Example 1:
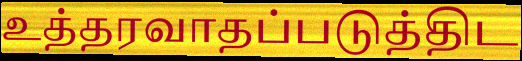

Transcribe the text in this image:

உத்தரவாதப்படுத்திட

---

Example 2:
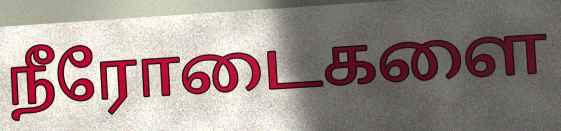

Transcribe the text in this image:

நீரோடைகளை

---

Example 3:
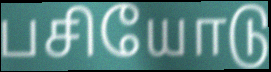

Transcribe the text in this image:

பசியோடு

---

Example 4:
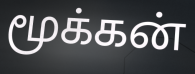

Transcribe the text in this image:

மூக்கன்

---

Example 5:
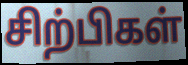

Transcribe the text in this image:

சிற்பிகள்